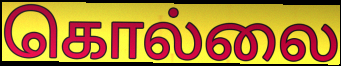
கொல்லை